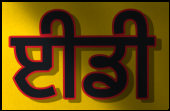
ਈਡੀ